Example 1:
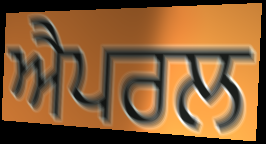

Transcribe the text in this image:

ਐਪਰਲ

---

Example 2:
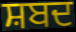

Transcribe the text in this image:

ਸ਼ਬਦ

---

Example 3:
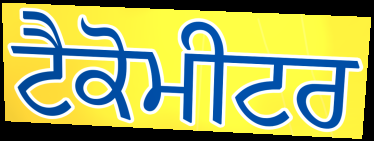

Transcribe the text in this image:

ਟੈਕੋਮੀਟਰ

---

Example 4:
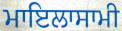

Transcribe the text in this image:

ਮਾਇਲਾਸਾਮੀ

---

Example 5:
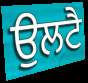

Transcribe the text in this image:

ਉਲਟੈ